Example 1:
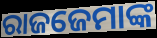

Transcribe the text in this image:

ରାଜଜେମାଙ୍କ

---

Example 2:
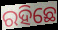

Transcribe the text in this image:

ରହିଛେ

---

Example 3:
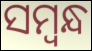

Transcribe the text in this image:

ସମ୍ୱନ୍ଧ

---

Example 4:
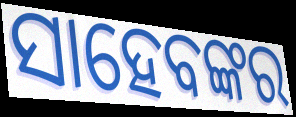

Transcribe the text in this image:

ସାହେବଙ୍କର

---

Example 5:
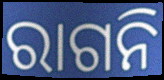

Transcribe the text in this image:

ରାଗନି